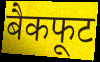
बैकफूट